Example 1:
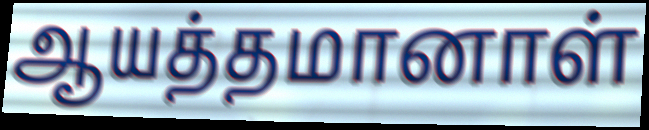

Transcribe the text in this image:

ஆயத்தமானாள்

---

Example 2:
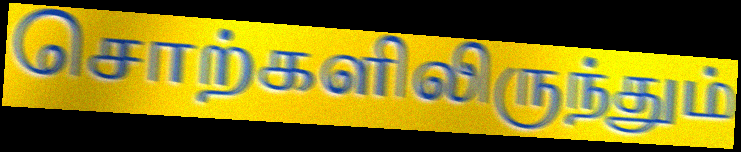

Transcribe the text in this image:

சொற்களிலிருந்தும்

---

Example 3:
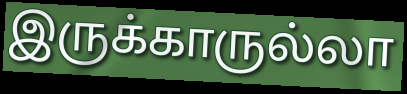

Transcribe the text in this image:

இருக்காருல்லா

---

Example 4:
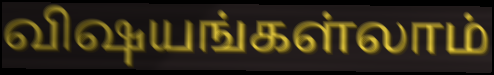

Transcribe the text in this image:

விஷயங்கள்லாம்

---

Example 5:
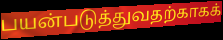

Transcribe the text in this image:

பயன்படுத்துவதற்காகக்